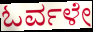
ಓರ್ವಳೇ